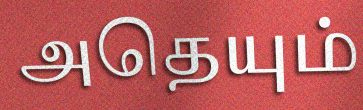
அதெயும்